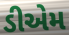
ડીએમ